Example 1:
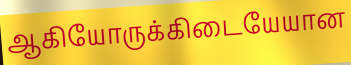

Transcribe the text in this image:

ஆகியோருக்கிடையேயான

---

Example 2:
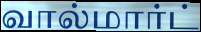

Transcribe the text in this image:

வால்மார்ட்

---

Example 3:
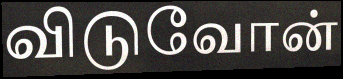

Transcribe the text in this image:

விடுவோன்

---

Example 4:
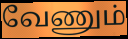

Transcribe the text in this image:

வேணும்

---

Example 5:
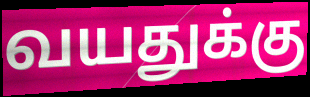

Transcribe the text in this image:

வயதுக்கு